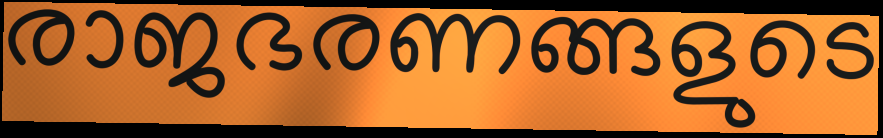
രാജഭരണങ്ങളുടെ